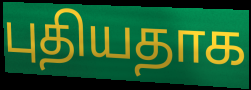
புதியதாக